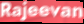
Rajeevan